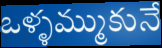
ఒళ్ళమ్ముకునే